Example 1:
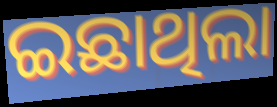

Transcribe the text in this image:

ଇଛାଥିଲା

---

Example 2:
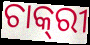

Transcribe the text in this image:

ଚାକ୍‌ରୀ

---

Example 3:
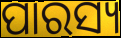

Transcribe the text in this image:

ପାରସ୍ଯ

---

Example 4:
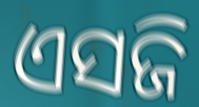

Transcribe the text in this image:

ଏସଜି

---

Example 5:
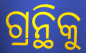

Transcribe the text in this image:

ଗ୍ରନ୍ଥିକୁ